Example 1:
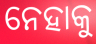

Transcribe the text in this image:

ନେହାକୁ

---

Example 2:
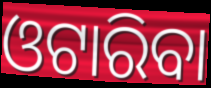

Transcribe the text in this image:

ଓଟାରିବା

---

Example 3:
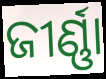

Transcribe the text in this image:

ଜୀର୍ଣ୍ଣା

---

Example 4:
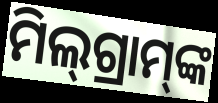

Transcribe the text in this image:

ମିଲ୍‌ଗ୍ରାମ୍‌ଙ୍କ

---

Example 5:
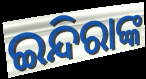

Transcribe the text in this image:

ଇନ୍ଦିରାଙ୍କ